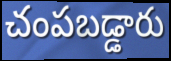
చంపబడ్డారు